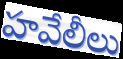
హవేలీలు